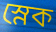
স্নেক